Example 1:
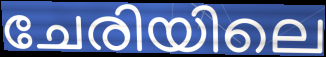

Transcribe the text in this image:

ചേരിയിലെ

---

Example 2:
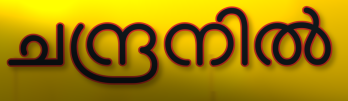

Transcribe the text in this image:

ചന്ദ്രനിൽ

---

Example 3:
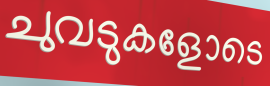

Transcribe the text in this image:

ചുവടുകളോടെ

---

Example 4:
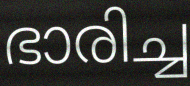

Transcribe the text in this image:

ഭാരിച്ച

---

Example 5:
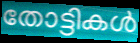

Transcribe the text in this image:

തോട്ടികൾ